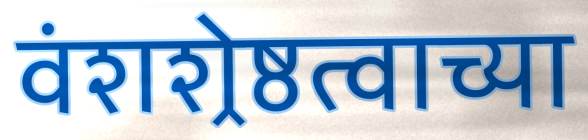
वंशश्रेष्ठत्वाच्या